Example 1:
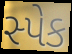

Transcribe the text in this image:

સ્પેક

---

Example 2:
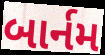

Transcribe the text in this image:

બાર્નમ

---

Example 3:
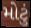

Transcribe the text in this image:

મોટું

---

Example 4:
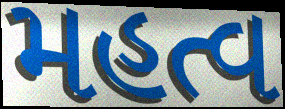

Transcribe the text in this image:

મહત્વ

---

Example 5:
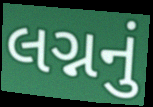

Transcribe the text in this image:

લગ્નનું